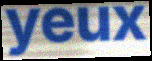
yeux